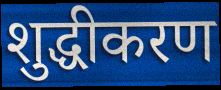
शुद्धीकरण